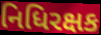
નિધિરક્ષક